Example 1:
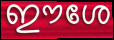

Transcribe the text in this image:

ഈശേ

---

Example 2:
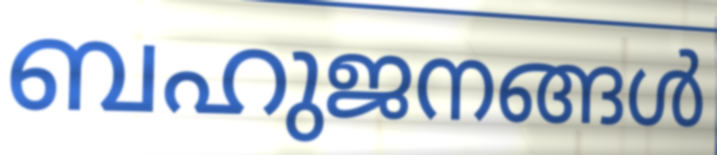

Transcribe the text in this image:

ബഹുജനങ്ങൾ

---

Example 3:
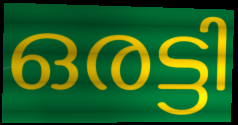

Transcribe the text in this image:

ഒരട്ടി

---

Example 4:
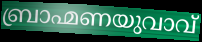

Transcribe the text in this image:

ബ്രാഹ്മണയുവാവ്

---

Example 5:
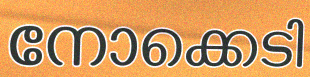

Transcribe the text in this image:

നോക്കെടി